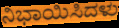
ನಿಭಾಯಿಸಿದಳು